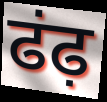
ढंढ़